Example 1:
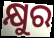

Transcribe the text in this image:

କ୍ଷୁର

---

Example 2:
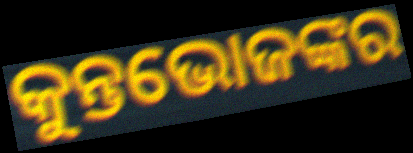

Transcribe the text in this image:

କୁନ୍ତଭୋଜଙ୍କର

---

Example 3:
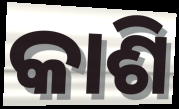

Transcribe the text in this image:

କାଶି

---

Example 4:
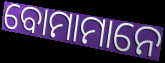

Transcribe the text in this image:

ବୋମାମାନେ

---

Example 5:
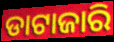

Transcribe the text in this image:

ଡାଟାଜାରି